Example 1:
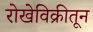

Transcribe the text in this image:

रोखेविक्रीतून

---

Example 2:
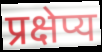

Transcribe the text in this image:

प्रक्षेप्य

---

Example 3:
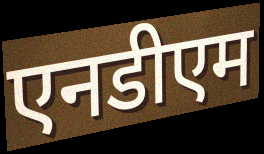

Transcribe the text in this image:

एनडीएम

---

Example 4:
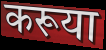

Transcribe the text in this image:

करूया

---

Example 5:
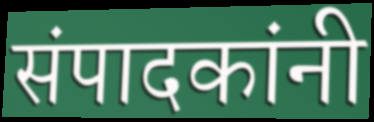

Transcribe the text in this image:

संपादकांनी